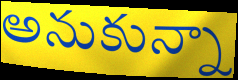
అనుకున్నా